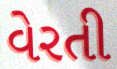
વેરતી